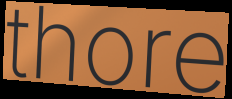
thore